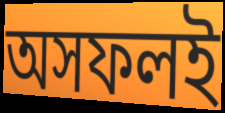
অসফলই